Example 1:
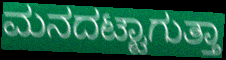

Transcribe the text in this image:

ಮನದಟ್ಟಾಗುತ್ತಾ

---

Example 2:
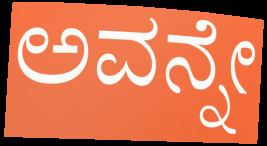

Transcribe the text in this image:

ಅವನ್ನೇ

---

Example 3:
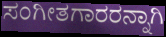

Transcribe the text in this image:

ಸಂಗೀತಗಾರರನ್ನಾಗಿ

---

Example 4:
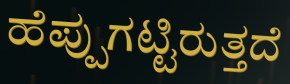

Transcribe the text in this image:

ಹೆಪ್ಪುಗಟ್ಟಿರುತ್ತದೆ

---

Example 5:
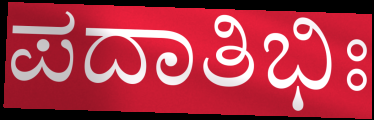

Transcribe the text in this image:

ಪದಾತಿಭಿಃ